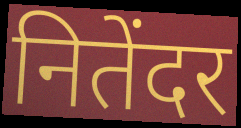
नितेंदर